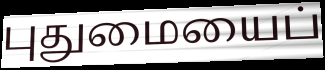
புதுமையைப்